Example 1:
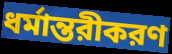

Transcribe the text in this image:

ধর্মান্তরীকরণ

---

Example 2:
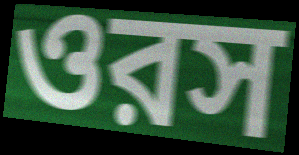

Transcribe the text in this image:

ওরস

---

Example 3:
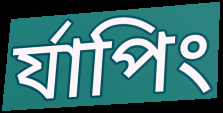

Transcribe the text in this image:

র্যাপিং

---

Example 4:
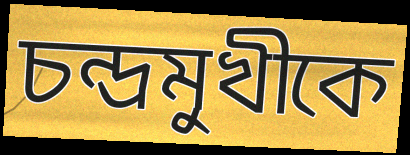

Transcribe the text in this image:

চন্দ্রমুখীকে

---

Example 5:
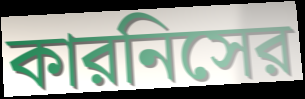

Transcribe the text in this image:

কারনিসের